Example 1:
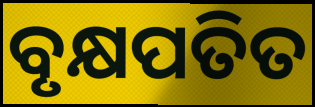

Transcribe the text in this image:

ବୃକ୍ଷପତିତ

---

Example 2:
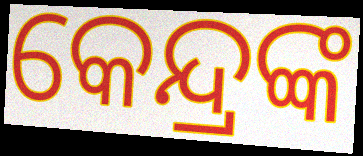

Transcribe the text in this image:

କେନ୍ଦ୍ରଙ୍କ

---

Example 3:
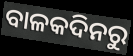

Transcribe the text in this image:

ବାଳକଦିନରୁ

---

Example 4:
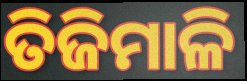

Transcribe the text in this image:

ତିଜିମାଳି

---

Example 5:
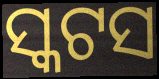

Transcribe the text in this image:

ସ୍କଟସ